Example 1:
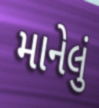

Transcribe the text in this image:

માનેલું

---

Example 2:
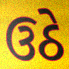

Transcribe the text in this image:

ઉઠે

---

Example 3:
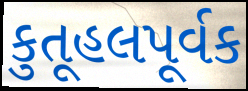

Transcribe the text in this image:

કુતૂહલપૂર્વક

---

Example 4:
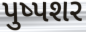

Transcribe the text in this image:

પુષ્પશર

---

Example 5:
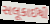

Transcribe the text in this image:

સલૂકાઈથી